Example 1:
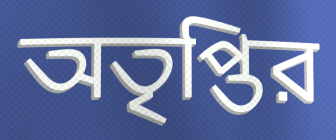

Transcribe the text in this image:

অতৃপ্তির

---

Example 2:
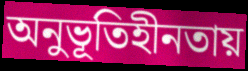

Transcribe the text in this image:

অনুভূতিহীনতায়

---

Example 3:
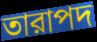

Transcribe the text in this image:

তারাপদ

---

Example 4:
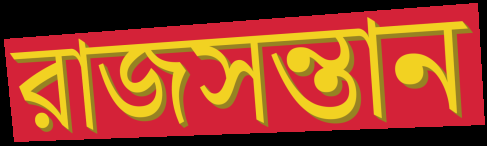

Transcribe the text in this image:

রাজসন্তান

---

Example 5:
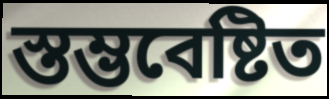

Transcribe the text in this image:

স্তম্ভবেষ্টিত